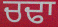
ਚਢਾ